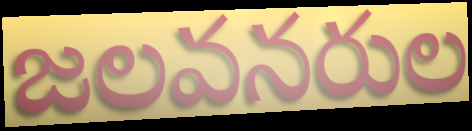
జలవనరుల